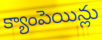
క్యాంపెయిన్లు